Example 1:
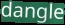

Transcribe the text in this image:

dangle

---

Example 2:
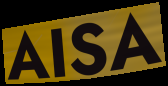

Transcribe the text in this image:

AISA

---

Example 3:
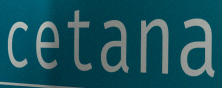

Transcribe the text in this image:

cetana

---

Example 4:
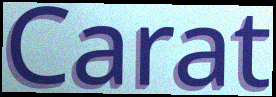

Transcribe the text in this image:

Carat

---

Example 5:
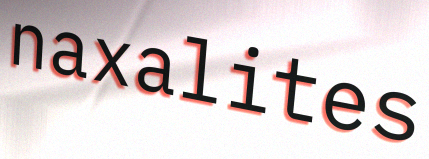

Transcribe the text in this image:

naxalites